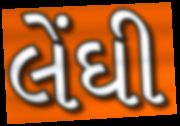
લેંઘી